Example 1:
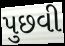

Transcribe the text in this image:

પુછવી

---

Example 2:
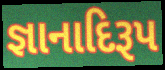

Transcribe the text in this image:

જ્ઞાનાદિરૂપ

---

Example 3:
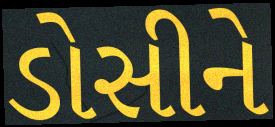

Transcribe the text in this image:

ડોસીને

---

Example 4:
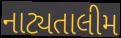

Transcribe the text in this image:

નાટ્યતાલીમ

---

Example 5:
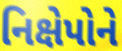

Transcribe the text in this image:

નિક્ષેપોને